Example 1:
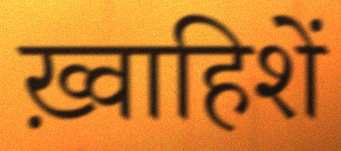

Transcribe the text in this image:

ख़्वाहिशें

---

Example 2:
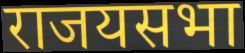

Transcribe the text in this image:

राजयसभा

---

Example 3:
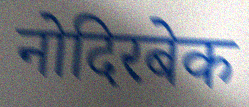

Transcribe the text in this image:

नोदिरबेक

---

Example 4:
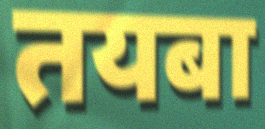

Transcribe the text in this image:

तयबा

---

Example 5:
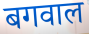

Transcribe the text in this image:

बगवाल